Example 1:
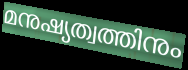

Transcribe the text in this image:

മനുഷ്യത്വത്തിനും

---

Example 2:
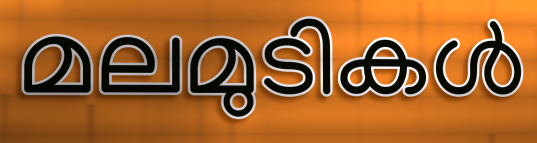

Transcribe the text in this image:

മലമുടികൾ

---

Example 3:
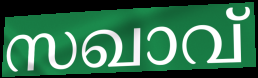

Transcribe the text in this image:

സഖാവ്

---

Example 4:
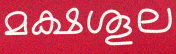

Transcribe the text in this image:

മക്ഷശൂല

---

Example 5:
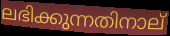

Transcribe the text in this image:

ലഭിക്കുന്നതിനാല്